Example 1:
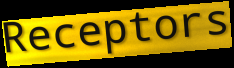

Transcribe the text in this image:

Receptors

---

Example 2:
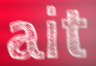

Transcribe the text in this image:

ait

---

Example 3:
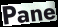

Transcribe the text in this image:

Pane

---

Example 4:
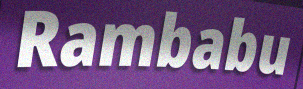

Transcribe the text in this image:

Rambabu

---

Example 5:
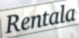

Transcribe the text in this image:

Rentala